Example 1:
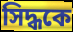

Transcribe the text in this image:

সিদ্ধকে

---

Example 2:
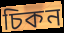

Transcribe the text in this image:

চিকন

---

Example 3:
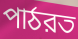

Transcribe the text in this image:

পাঠরত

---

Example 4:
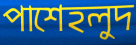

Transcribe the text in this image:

পাশেহলুদ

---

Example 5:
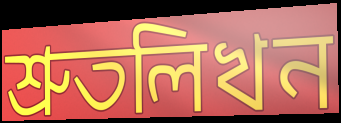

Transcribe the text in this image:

শ্রুতলিখন